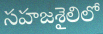
సహజశైలిలో